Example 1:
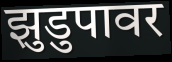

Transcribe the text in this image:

झुडुपावर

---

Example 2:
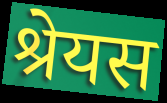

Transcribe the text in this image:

श्रेयस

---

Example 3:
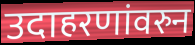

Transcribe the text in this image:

उदाहरणांवरुन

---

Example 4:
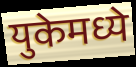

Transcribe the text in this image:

युकेमध्ये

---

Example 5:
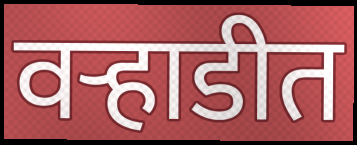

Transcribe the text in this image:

वऱ्हाडीत